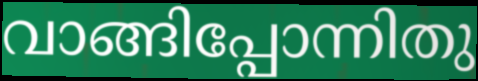
വാങ്ങിപ്പോന്നിതു